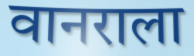
वानराला